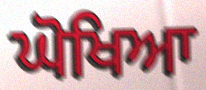
ਘੋਖਿਆ